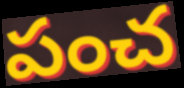
పంచ